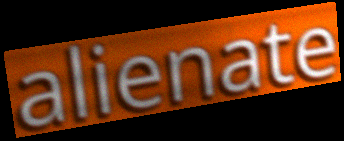
alienate